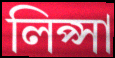
লিপ্সা